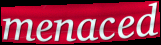
menaced